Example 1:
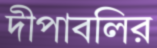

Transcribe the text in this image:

দীপাবলির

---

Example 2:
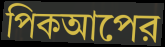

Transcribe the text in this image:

পিকআপের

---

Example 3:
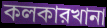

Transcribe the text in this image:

কলকারখানা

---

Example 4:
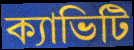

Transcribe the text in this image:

ক্যাভিটি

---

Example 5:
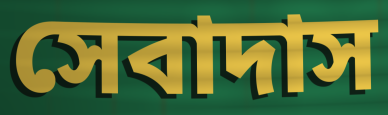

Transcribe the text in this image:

সেবাদাস